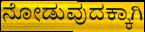
ನೋಡುವುದಕ್ಕಾಗಿ